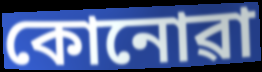
কোনোৱা